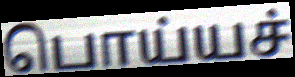
பொய்யச்